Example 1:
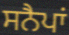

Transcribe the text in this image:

ਸਨੈਪਾਂ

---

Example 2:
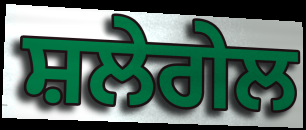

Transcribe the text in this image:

ਸ਼ਲੇਗੇਲ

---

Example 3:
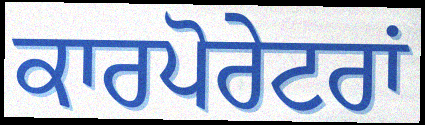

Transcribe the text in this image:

ਕਾਰਪੋਰੇਟਰਾਂ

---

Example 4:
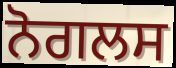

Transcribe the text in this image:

ਨੋਗਲਸ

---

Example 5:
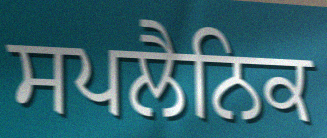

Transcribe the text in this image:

ਸਪਲੈਨਿਕ